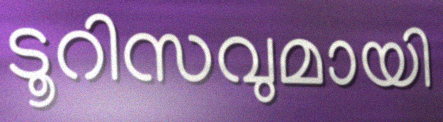
ടൂറിസവുമായി